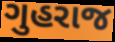
ગુહરાજ